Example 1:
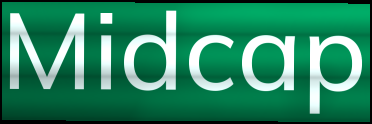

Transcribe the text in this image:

Midcap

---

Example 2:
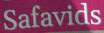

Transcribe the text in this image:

Safavids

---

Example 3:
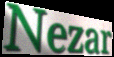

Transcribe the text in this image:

Nezar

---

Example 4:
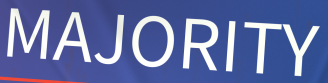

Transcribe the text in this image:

MAJORITY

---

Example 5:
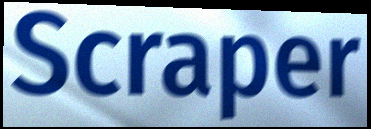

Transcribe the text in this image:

Scraper